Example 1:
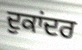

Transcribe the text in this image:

ਦੁਕਾਂਦਰ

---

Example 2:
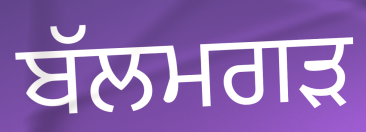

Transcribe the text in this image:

ਬੱਲਮਗੜ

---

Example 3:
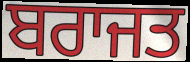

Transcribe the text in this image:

ਬਰਾਜਤ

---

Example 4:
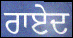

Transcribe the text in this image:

ਰਾਏਦ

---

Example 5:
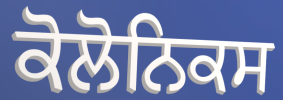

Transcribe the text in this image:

ਕੋਲੋਨਿਕਸ